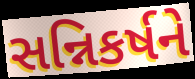
સન્નિકર્ષને